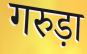
गरुड़ा